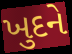
ખુદને